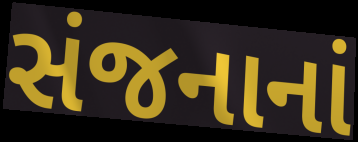
સંજનાનાં